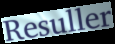
Resuller